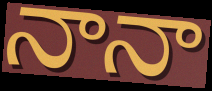
నానా